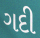
ગદી